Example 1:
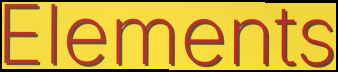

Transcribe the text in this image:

Elements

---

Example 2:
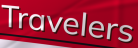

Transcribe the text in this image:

Travelers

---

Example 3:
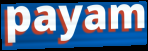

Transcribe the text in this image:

payam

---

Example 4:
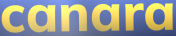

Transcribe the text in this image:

canara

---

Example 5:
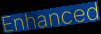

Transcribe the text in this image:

Enhanced